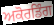
ਅਕੋਰਡਿੰਗ